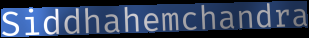
Siddhahemchandra